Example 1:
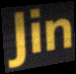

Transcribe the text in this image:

Jin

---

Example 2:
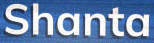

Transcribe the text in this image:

Shanta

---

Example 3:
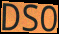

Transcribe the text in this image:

DSO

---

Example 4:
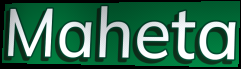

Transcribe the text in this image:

Maheta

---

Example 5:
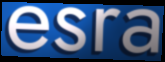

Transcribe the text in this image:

esra